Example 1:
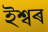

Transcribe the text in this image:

ইশ্বৰ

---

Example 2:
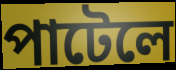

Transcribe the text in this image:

পাটেলে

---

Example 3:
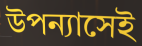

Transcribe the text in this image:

উপন্যাসেই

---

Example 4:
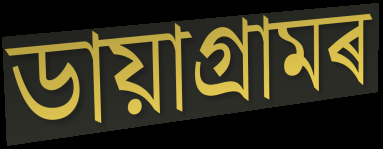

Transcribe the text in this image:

ডায়াগ্ৰামৰ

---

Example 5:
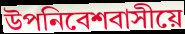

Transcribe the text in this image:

উপনিবেশবাসীয়ে